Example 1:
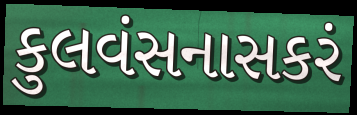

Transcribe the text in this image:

કુલવંસનાસકરં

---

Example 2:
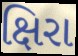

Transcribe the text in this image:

ક્ષિરા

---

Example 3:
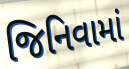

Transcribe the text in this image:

જિનિવામાં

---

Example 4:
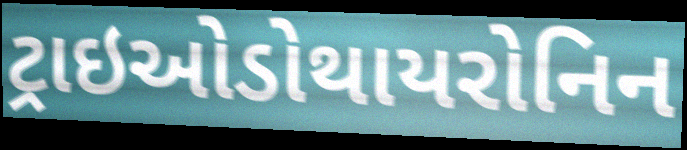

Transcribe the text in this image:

ટ્રાઇઓડોથાયરોનિન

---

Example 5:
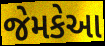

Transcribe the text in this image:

જેમકેઆ